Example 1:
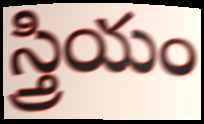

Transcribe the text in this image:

స్త్రియం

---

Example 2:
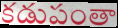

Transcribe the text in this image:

కడుపంతా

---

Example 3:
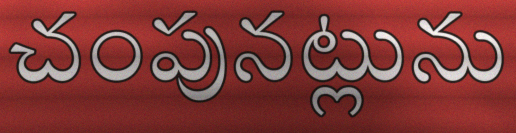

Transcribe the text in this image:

చంపునట్లును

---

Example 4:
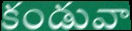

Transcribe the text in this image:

కండువా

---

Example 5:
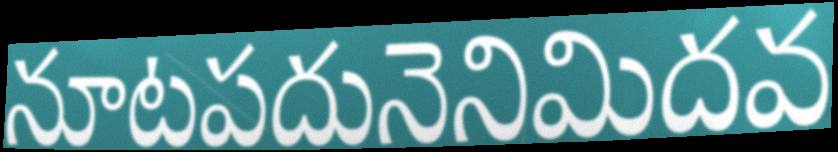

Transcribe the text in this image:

నూటపదునెనిమిదవ